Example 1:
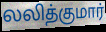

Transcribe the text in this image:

லலித்குமார்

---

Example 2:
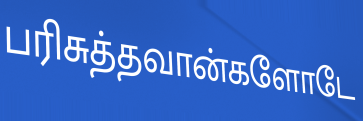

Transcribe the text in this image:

பரிசுத்தவான்களோடே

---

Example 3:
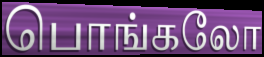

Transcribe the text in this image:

பொங்கலோ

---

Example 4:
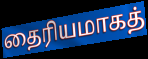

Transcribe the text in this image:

தைரியமாகத்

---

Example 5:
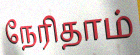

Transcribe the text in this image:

நேரிதாம்